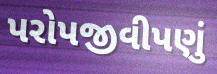
પરોપજીવીપણું